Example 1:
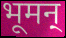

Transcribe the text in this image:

भूमन्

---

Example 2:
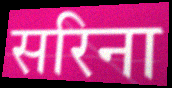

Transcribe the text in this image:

सरिना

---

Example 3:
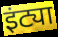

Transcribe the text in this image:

इंट्या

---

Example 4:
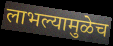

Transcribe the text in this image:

लाभल्यामुळेच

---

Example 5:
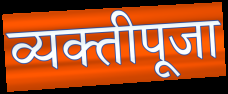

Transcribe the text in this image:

व्यक्तीपूजा